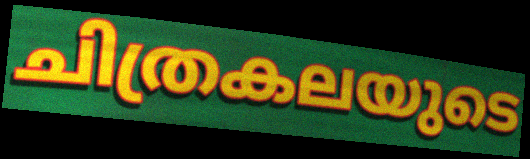
ചിത്രകലയുടെ